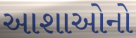
આશાઓનો